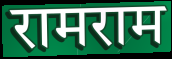
रामराम